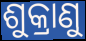
ଶୁକ୍ରାଣୁ